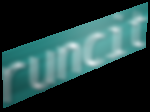
runcit